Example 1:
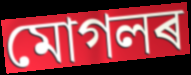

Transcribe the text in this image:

মোগলৰ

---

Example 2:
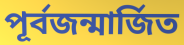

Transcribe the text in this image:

পূৰ্বজন্মাৰ্জিত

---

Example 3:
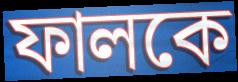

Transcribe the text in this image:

ফালকে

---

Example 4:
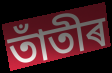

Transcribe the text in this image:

তাঁতীৰ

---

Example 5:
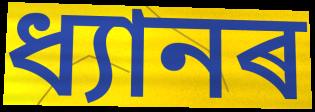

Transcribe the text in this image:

ধ্যানৰ